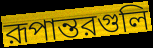
রূপান্তরগুলি